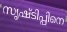
സൃഷ്ടിപ്പിനെ